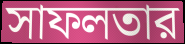
সাফলতার